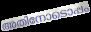
അതിനോടൊപ്പം